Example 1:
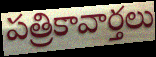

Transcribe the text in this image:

పత్రికావార్తలు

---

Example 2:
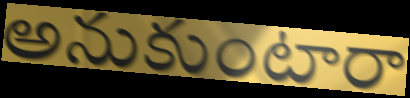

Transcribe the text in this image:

అనుకుంటారా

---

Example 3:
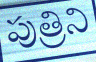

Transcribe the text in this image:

పుత్రిని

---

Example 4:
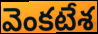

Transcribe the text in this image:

వెంకటేశ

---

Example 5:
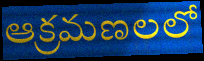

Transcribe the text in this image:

ఆక్రమణలలో